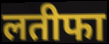
लतीफा